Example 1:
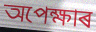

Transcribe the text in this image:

অপেক্ষাৰ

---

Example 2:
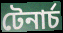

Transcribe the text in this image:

টেনাৰ্চ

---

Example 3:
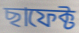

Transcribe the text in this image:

ছাফেক্ট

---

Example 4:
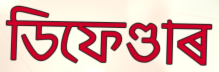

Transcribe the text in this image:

ডিফেণ্ডাৰ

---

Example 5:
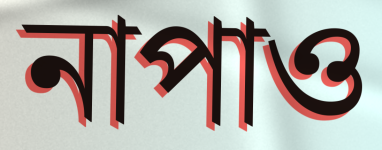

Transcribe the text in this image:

নাপাও